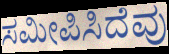
ಸಮೀಪಿಸಿದೆವು